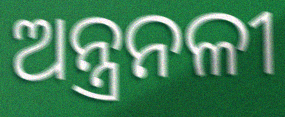
ଅନ୍ତ୍ରନଳୀ